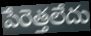
పేరెత్తలేదు